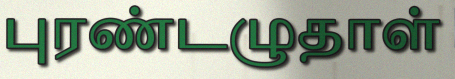
புரண்டழுதாள்